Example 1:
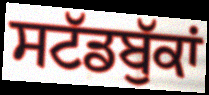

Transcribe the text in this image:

ਸਟੱਡਬੁੱਕਾਂ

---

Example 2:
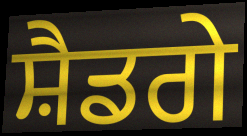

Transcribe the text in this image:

ਸ਼ੈਡਗੇ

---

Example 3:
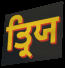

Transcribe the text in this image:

ਤ੍ਰਿਯ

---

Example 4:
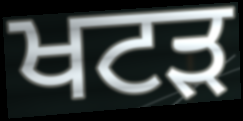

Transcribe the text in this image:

ਖਟੜ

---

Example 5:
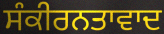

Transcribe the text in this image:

ਸੰਕੀਰਨਤਾਵਾਦ